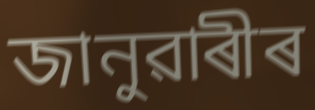
জানুৱাৰীৰ